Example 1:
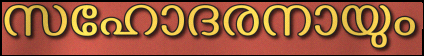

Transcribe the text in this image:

സഹോദരനായും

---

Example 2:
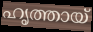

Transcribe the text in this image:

ഹൃത്തായ്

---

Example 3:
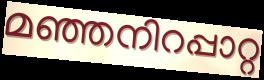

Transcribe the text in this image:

മഞ്ഞനിറപ്പാറ്റ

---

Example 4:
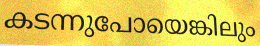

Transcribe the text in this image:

കടന്നുപോയെങ്കിലും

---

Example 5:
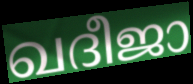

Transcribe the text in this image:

ഖദീജാ